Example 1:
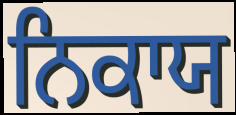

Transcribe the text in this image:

ਨਿਕਾਯ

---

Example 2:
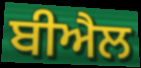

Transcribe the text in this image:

ਬੀਐਲ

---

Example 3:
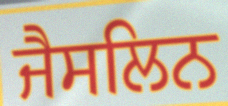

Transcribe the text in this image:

ਜੈਸਲਿਨ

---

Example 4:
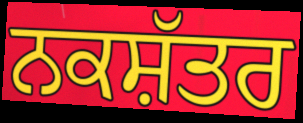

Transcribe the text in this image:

ਨਕਸ਼ੱਤਰ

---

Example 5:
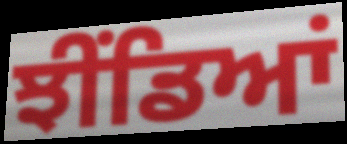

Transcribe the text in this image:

ਝੀਂਡਿਆਂ